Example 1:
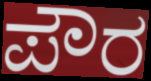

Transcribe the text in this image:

ಪೌರ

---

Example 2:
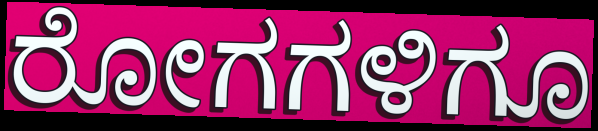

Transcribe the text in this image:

ರೋಗಗಳಿಗೂ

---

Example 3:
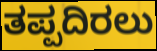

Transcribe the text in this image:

ತಪ್ಪದಿರಲು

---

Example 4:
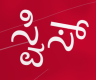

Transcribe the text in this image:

ಸ್ವಿಸ್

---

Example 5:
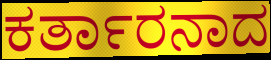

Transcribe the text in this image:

ಕರ್ತಾರನಾದ